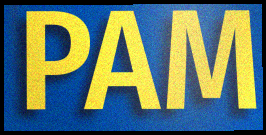
PAM